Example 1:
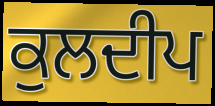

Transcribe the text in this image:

ਕੁਲਦੀਪ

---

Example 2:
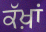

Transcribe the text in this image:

ਕੱਖ਼ਾਂ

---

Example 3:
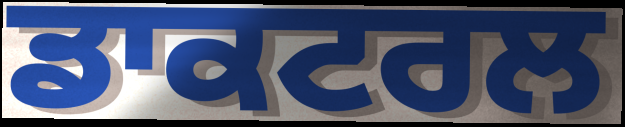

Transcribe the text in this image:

ਡਾਕਟਰਲ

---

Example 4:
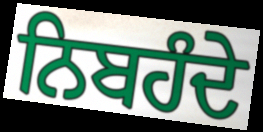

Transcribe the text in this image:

ਨਿਬਹੰਦੇ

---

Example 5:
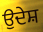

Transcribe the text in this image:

ਉਦੇਸ਼